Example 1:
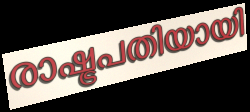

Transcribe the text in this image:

രാഷ്ട്രപതിയായി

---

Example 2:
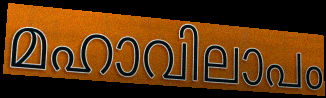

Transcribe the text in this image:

മഹാവിലാപം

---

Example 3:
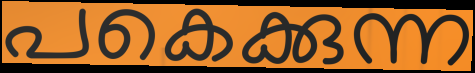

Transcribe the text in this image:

പകെക്കുന്ന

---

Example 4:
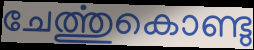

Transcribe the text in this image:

ചേൎത്തുകൊണ്ടു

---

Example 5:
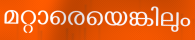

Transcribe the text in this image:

മറ്റാരെയെങ്കിലും